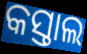
କସ୍ତାଲ